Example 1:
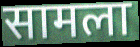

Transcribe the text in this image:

सामला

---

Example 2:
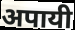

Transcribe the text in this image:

अपायी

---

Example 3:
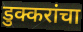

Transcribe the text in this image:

डुक्करांचा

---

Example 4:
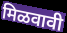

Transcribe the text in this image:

मिळवावी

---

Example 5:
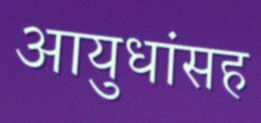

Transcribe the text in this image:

आयुधांसह